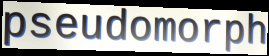
pseudomorph